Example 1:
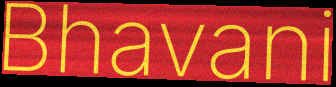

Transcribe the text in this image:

Bhavani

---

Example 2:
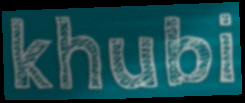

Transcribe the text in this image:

khubi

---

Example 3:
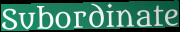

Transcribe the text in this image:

Subordinate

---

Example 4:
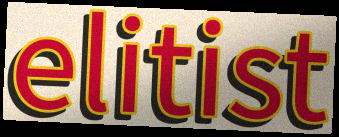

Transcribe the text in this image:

elitist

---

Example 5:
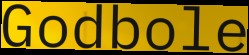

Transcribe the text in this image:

Godbole